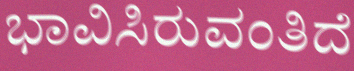
ಭಾವಿಸಿರುವಂತಿದೆ